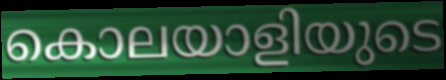
കൊലയാളിയുടെ